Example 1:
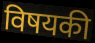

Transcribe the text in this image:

विषयकी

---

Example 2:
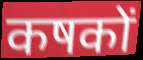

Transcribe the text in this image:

कषकों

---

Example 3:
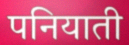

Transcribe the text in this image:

पनियाती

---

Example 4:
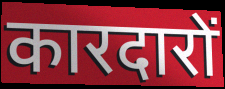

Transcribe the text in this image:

कारदारों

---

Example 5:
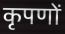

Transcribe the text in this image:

कृपणों